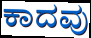
ಕಾದವು